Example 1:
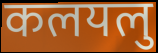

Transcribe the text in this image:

कलयलु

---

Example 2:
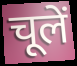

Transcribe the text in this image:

चूलें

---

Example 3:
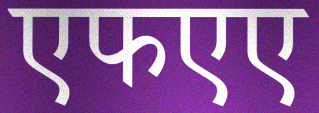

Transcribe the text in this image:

एफएए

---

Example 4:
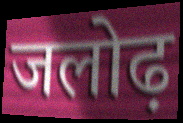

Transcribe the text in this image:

जलोढ़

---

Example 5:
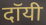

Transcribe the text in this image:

दॉयी